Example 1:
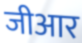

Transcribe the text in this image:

जीआर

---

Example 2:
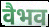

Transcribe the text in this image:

वैभव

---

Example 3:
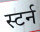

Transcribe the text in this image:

स्टर्न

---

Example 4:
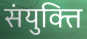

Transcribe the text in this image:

संयुक्ति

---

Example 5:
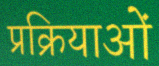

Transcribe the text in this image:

प्रक्रियाओं